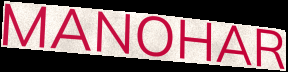
MANOHAR